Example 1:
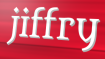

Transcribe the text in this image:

jiffry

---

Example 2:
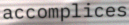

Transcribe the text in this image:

accomplices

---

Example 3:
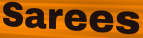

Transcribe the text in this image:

Sarees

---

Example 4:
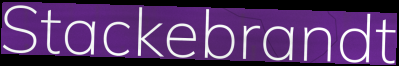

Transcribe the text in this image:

Stackebrandt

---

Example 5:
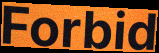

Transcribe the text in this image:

Forbid